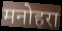
मनोहरा